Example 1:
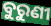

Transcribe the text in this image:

ବୁରୁଣୀ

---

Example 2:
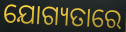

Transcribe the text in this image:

ଯୋଗ୍ୟତାରେ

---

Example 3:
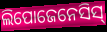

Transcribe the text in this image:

ଲିପୋଜେନେସିସ୍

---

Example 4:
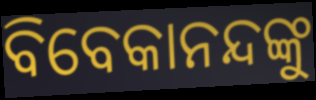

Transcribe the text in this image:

ବିବେକାନନ୍ଦଙ୍କୁ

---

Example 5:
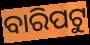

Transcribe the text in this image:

ବାରିପଟୁ